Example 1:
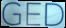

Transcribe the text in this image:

GED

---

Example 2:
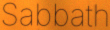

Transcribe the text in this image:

Sabbath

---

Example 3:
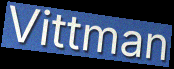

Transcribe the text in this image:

Vittman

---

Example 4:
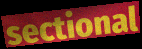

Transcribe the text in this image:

sectional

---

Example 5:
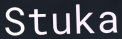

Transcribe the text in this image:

Stuka